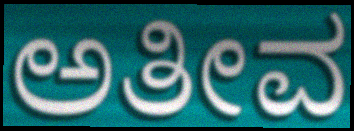
ಅತೀವ